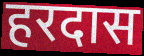
हरदास